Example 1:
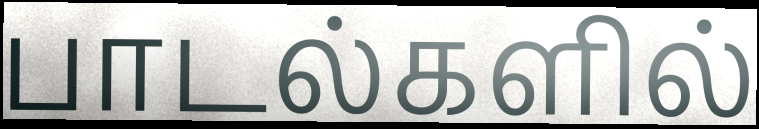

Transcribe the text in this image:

பாடல்களில்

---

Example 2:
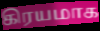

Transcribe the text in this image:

கிரயமாக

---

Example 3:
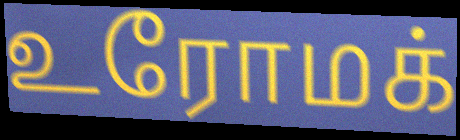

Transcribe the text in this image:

உரோமக்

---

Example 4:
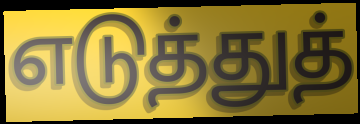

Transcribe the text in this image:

எடுத்துத்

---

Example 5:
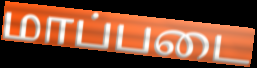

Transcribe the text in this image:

மாப்படை